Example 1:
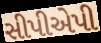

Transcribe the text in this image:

સીપીએપી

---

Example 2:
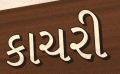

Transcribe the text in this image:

કાચરી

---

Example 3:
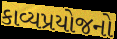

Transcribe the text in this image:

કાવ્યપ્રયોજનો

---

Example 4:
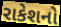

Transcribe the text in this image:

રાકેશનો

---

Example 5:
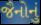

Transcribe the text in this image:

જૈનોનું